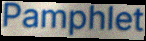
Pamphlet